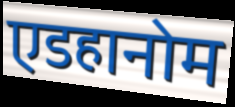
एडहानोम